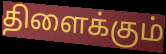
திளைக்கும்